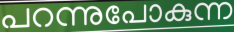
പറന്നുപോകുന്ന